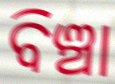
ବିଞ୍ଚା